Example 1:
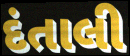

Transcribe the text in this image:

દંતાલી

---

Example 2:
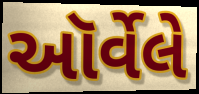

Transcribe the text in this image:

ઑર્વેલે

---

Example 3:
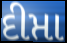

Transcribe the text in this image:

દીપ્તા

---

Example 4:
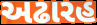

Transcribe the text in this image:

અઢારહ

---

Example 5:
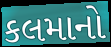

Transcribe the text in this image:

કલમાનો